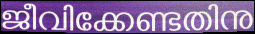
ജീവിക്കേണ്ടതിനു